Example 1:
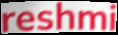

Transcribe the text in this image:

reshmi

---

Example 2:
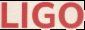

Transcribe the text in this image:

LIGO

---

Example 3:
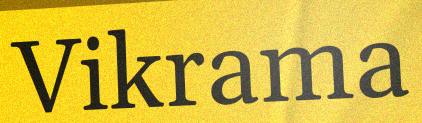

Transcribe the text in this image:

Vikrama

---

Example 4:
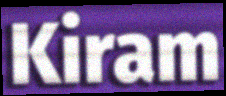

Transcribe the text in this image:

Kiram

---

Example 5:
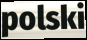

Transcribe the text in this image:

polski